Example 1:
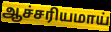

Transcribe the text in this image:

ஆச்சரியமாய்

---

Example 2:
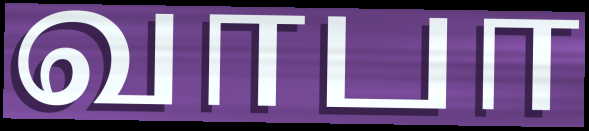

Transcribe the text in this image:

வாபா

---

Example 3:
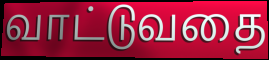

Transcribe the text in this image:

வாட்டுவதை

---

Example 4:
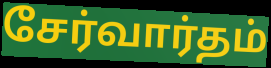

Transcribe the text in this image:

சேர்வார்தம்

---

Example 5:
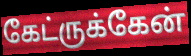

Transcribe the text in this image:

கேட்ருக்கேன்